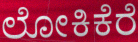
ಲೋಕಿಕೆರೆ